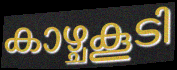
കാഴ്ചകൂടി